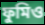
ফুমিও